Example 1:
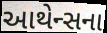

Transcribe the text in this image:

આથેન્સના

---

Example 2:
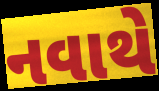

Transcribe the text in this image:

નવાથે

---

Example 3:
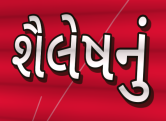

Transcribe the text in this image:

શૈલેષનું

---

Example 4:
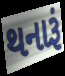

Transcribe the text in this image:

થનારૂં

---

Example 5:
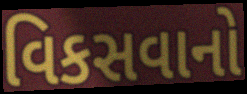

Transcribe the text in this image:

વિકસવાનો